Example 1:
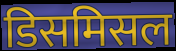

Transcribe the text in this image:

डिसमिसल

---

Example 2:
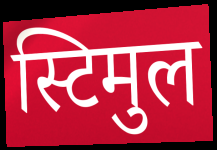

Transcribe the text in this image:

स्टिमुल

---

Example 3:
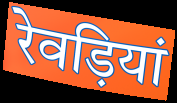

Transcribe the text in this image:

रेवड़ियां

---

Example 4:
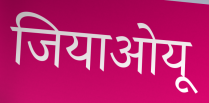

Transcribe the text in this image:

जियाओयू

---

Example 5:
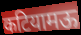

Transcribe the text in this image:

कटियामऊ